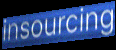
insourcing